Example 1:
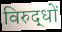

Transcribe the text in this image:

विरुद्धों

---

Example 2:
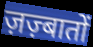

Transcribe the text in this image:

ज़ज़्बातों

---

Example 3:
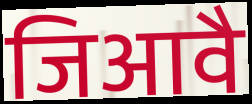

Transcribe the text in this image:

जिआवै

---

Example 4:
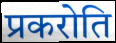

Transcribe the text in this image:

प्रकरोति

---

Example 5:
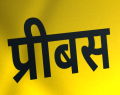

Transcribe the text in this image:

प्रीबस